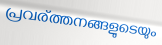
പ്രവര്ത്തനങ്ങളുടെയും